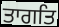
ਤਾਗਤਿ